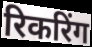
रिकरिंग